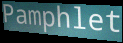
Pamphlet